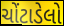
ચોંટાડેલો